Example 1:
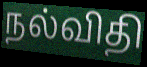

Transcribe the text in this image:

நல்விதி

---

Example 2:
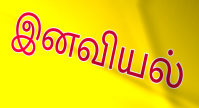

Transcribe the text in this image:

இனவியல்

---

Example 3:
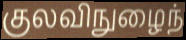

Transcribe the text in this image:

குலவிநுழைந்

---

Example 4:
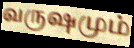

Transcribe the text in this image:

வருஷமும்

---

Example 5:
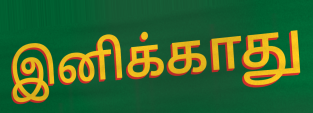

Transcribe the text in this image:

இனிக்காது